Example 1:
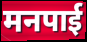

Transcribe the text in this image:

मनपाई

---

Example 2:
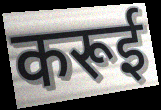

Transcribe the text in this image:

करूई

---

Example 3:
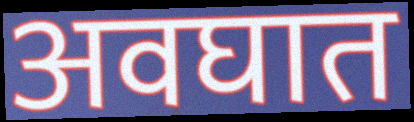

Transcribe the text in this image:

अवघात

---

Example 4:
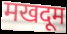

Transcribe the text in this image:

मखदूम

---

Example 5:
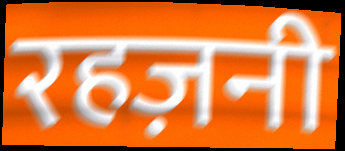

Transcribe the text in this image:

रहज़नी